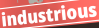
industrious